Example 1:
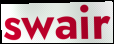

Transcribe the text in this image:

swair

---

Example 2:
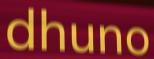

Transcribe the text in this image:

dhuno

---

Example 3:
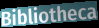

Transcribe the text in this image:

Bibliotheca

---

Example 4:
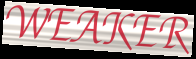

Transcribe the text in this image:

WEAKER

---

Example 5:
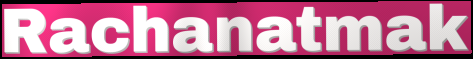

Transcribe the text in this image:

Rachanatmak